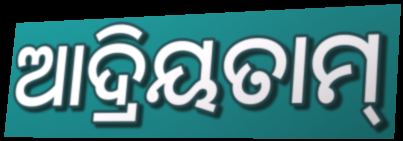
ଆଦ୍ରିୟତାମ୍